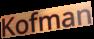
Kofman